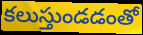
కలుస్తుండడంతో